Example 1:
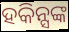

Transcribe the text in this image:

ହକିନ୍ସଙ୍କ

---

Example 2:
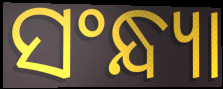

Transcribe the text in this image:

ସଂନ୍ଧ୍ଯା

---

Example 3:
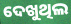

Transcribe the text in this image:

ଦେଖୁଥିଲ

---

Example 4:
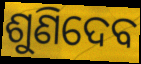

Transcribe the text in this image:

ଶୁଣିଦେବ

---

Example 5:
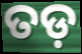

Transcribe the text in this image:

ତଡ଼